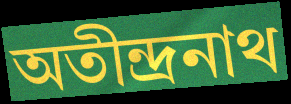
অতীন্দ্রনাথ